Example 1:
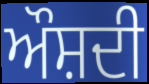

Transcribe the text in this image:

ਔਸ਼ਦੀ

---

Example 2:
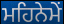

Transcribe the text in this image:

ਮਹਿਨੇਮੇਂ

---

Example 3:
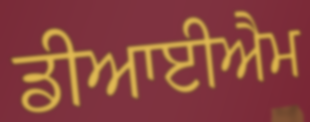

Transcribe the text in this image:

ਡੀਆਈਐਮ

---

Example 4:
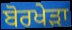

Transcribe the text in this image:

ਬੋਰਖੇੜਾ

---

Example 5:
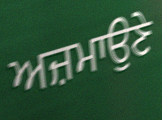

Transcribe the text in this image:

ਅਜ਼ਮਾਉਣੇ